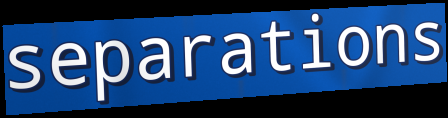
separations